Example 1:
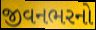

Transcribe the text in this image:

જીવનભરનો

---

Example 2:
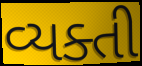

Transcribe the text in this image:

વ્યક્તી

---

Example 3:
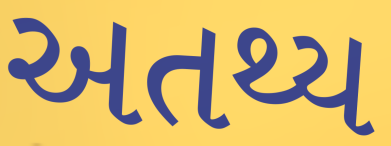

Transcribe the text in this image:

અતથ્ય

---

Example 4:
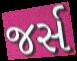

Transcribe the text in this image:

જર્સ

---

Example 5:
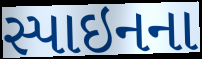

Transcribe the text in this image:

સ્પાઇનના